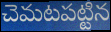
చెమటపట్టిన